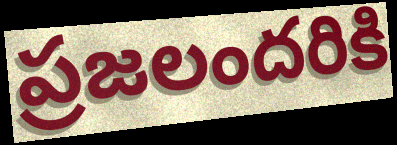
ప్రజలందరికి